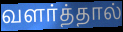
வளர்த்தால்